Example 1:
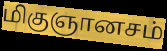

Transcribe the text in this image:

மிகுஞானசம்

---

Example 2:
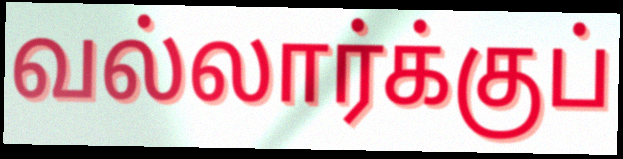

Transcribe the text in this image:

வல்லார்க்குப்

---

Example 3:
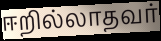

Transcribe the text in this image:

ஈறில்லாதவர்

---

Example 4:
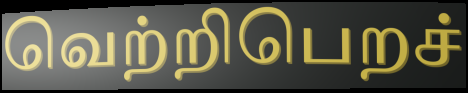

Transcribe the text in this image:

வெற்றிபெறச்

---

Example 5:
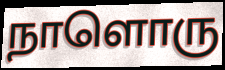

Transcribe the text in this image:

நாளொரு